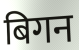
बिगन